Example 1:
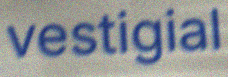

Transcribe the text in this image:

vestigial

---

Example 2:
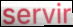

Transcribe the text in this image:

servir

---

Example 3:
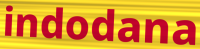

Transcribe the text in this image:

indodana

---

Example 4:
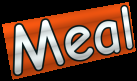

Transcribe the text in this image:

Meal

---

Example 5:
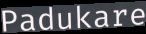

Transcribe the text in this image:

Padukare